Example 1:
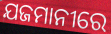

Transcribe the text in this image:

ଯଜମାନୀରେ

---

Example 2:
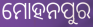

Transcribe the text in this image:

ମୋହନପୁର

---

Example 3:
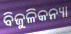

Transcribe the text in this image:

ବିଜୁଳିକନ୍ୟା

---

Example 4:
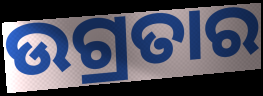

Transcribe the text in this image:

ଉଗ୍ରତାର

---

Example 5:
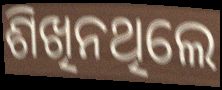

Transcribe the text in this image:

ଶିଖିନଥିଲେ